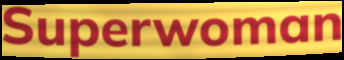
Superwoman